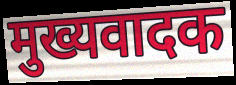
मुख्यवादक